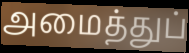
அமைத்துப்